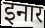
इनार